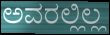
ಅವರಲ್ಲಿಲ್ಲ